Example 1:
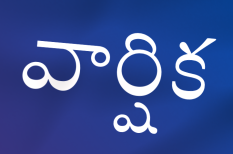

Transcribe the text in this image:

వార్షిక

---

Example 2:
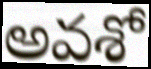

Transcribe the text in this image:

అవశో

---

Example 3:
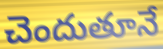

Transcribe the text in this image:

చెందుతూనే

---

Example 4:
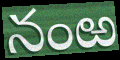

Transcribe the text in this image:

నంఱ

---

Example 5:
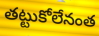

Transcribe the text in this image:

తట్టుకోలేనంత